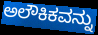
ಅಲೌಕಿಕವನ್ನು